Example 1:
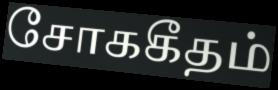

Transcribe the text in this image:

சோககீதம்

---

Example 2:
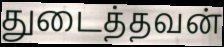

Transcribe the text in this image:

துடைத்தவன்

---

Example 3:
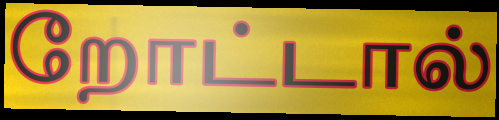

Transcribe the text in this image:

றோட்டால்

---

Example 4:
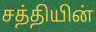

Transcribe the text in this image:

சத்தியின்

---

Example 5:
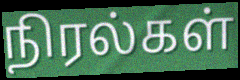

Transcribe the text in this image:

நிரல்கள்